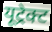
यूट्रेक्ट